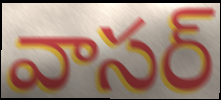
వాసర్